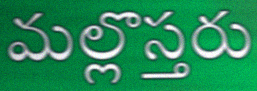
మల్లొస్తరు